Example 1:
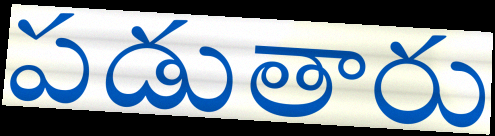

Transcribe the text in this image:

పడుతారు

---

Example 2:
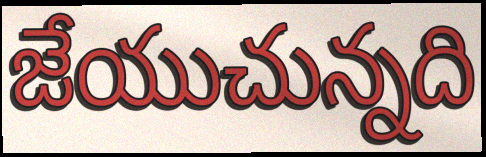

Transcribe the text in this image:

జేయుచున్నది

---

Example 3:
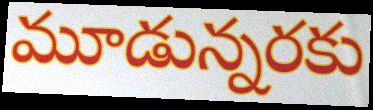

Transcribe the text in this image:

మూడున్నరకు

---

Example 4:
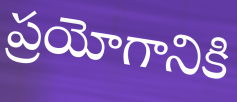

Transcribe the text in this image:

ప్రయోగానికి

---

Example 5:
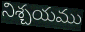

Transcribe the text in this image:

నిశ్చయము